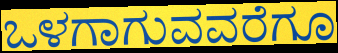
ಒಳಗಾಗುವವರೆಗೂ